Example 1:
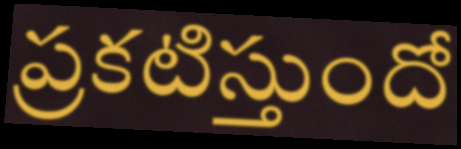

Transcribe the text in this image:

ప్రకటిస్తుందో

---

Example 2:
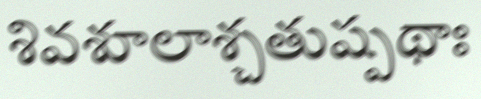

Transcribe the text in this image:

శివశూలాశ్చతుష్పథాః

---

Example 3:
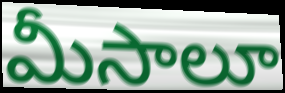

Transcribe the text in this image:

మీసాలూ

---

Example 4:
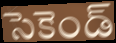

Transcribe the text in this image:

సెకెండ్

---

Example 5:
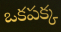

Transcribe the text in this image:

ఒకపక్క